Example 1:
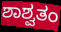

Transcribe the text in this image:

ಶಾಶ್ವತಂ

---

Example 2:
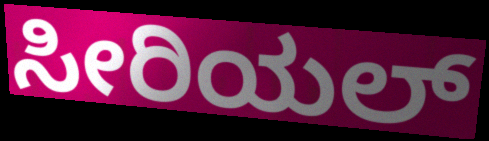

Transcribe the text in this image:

ಸೀರಿಯಲ್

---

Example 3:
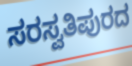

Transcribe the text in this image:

ಸರಸ್ವತಿಪುರದ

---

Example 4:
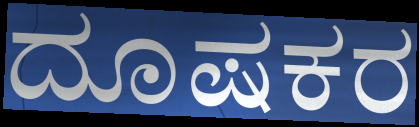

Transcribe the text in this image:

ದೂಷಕರ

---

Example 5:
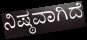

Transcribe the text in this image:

ನಿಷ್ಠವಾಗಿದೆ